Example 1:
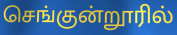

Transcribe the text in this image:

செங்குன்றூரில்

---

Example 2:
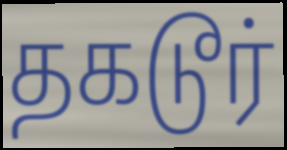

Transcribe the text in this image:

தகடூர்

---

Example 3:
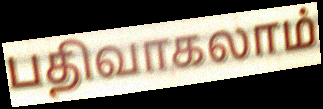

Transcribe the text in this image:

பதிவாகலாம்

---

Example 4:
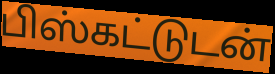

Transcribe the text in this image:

பிஸ்கட்டுடன்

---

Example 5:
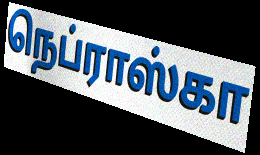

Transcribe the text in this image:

நெப்ராஸ்கா